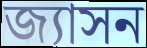
জ্যাসন